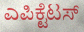
ಎಪಿಕ್ಟೆಟಸ್